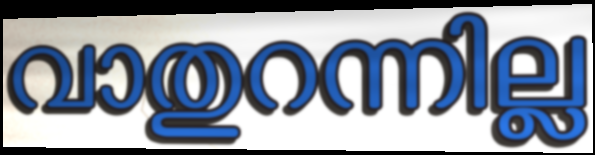
വാതുറന്നില്ല